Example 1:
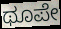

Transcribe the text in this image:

ಥೂಪೇ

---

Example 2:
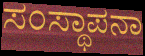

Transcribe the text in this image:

ಸಂಸ್ಥಾಪನಾ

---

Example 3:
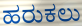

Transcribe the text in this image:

ಹರುಕಲು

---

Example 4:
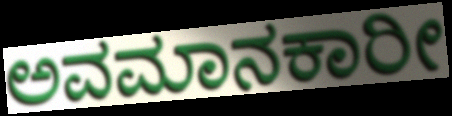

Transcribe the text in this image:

ಅವಮಾನಕಾರೀ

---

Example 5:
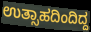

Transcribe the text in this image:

ಉತ್ಸಾಹದಿಂದಿದ್ದ